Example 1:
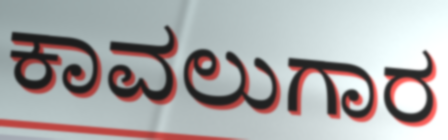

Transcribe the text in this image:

ಕಾವಲುಗಾರ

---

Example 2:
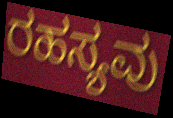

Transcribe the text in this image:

ರಹಸ್ಯವು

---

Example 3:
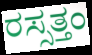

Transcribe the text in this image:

ರಸ್ಸತ್ತಂ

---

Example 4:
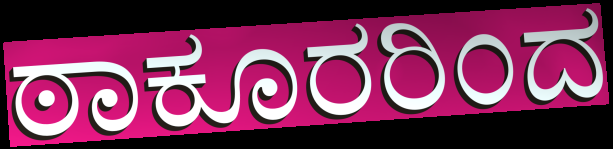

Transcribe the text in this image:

ಠಾಕೂರರಿಂದ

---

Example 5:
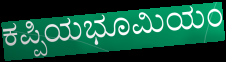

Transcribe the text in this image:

ಕಪ್ಪಿಯಭೂಮಿಯಂ